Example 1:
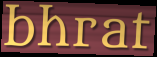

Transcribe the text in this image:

bhrat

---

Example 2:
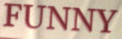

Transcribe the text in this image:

FUNNY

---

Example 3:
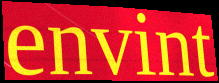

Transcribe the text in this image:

envint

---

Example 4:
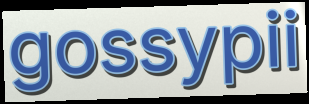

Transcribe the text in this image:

gossypii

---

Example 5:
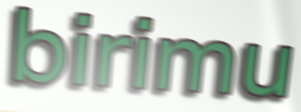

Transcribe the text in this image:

birimu